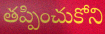
తప్పించుకోని